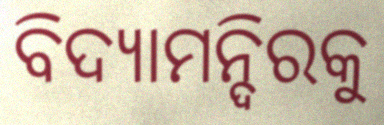
ବିଦ୍ୟାମନ୍ଦିରକୁ